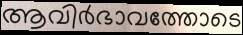
ആവിർഭാവത്തോടെ